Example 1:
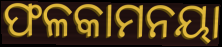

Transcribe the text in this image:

ଫଳକାମନୟା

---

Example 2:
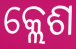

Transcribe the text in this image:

କ୍ଲେଶ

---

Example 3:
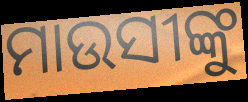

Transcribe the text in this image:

ମାଉସୀଙ୍କୁ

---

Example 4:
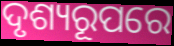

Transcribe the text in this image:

ଦୃଶ୍ୟରୂପରେ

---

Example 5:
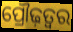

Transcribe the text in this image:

ପ୍ରୌଢ଼ତ୍ୱର